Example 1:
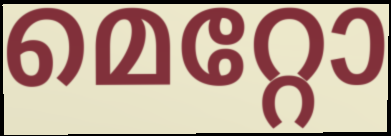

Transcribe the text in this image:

മെറ്റോ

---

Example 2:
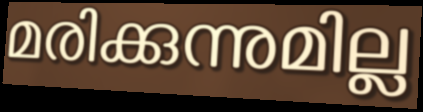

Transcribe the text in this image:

മരിക്കുന്നുമില്ല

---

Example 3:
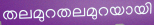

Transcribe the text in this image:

തലമുറതലമുറയായി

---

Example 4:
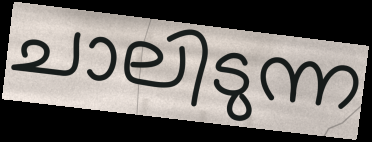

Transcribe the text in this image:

ചാലിടുന്ന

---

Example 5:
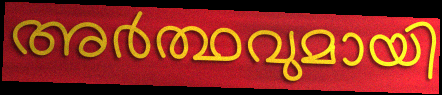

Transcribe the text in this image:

അർത്ഥവുമായി